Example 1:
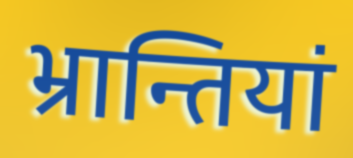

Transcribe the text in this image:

भ्रान्तियां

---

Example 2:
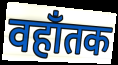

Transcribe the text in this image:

वहाँतक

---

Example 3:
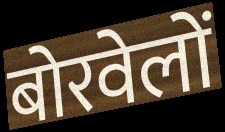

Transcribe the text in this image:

बोरवेलों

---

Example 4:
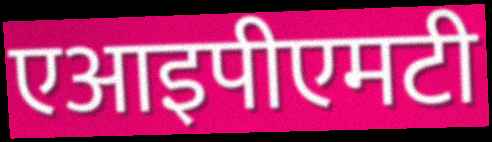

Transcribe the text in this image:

एआइपीएमटी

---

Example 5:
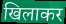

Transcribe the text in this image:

खिलाकर